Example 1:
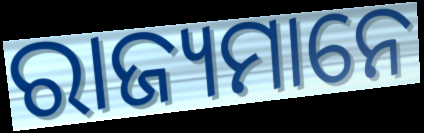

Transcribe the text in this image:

ରାଜ୍ୟମାନେ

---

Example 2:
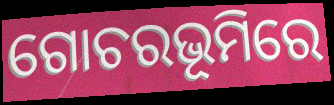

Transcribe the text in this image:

ଗୋଚରଭୂମିରେ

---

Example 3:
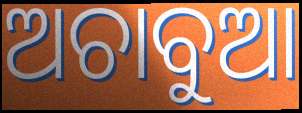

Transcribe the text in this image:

ଅଚାବୁଆ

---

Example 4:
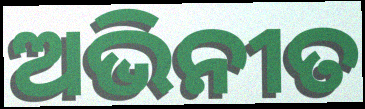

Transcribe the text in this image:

ଅଭିନୀତ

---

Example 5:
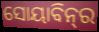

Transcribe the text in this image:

ସୋୟାବିନ୍‌ର